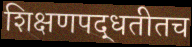
शिक्षणपद्धतीतच